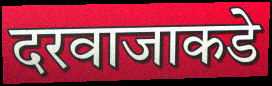
दरवाजाकडे